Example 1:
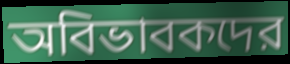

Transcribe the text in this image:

অবিভাবকদের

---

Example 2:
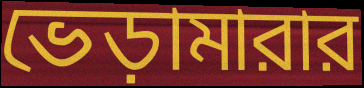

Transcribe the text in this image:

ভেড়ামারার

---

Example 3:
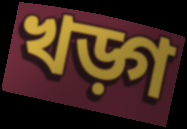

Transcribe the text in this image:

খড়্গ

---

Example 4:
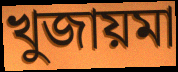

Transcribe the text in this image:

খুজায়মা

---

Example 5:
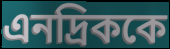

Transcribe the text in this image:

এনদ্রিককে